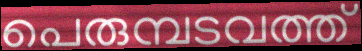
പെരുമ്പടവത്ത്